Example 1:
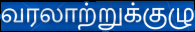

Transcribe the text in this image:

வரலாற்றுக்குழு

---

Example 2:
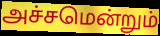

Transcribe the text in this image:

அச்சமென்றும்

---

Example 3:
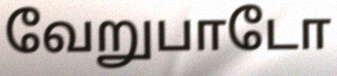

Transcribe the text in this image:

வேறுபாடோ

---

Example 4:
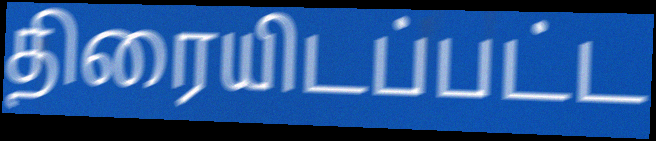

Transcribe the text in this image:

திரையிடப்பட்ட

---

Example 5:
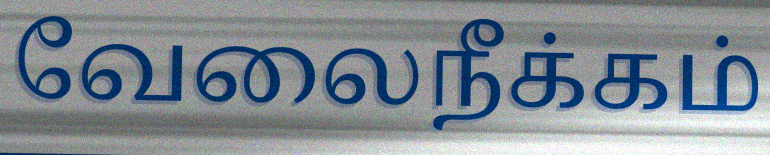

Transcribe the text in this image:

வேலைநீக்கம்